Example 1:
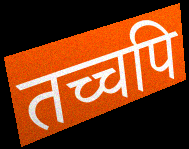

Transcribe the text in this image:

तच्चपि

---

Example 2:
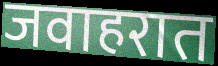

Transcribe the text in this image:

जवाहरात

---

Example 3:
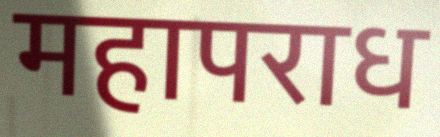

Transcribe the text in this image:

महापराध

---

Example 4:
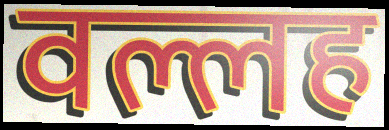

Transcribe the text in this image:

वल्लह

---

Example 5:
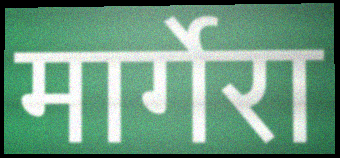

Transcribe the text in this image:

मार्गेरा